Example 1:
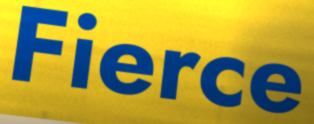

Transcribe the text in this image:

Fierce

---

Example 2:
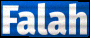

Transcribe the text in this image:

Falah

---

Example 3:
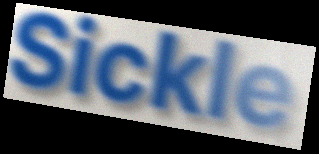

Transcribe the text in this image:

Sickle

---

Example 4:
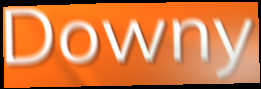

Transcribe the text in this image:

Downy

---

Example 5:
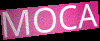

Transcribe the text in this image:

MOCA